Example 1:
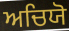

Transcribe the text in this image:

ਅਚਿਯੋ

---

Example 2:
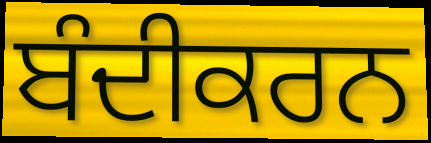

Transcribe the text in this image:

ਬੰਦੀਕਰਨ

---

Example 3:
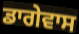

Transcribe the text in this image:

ਡਾਗੇਵਾਸ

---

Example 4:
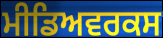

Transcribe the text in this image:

ਮੀਡਿਅਵਰਕਸ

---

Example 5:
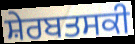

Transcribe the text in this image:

ਸ਼ੇਰਬਤਸਕੀ